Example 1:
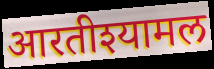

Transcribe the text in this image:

आरतीश्यामल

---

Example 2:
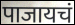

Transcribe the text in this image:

पाजायचं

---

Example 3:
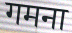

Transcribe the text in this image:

गमना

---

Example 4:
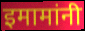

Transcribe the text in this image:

इमामांनी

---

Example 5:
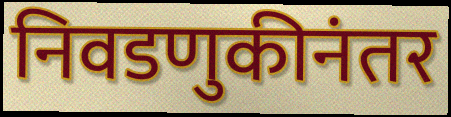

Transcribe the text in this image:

निवडणुकीनंतर